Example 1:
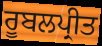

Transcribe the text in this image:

ਰੂਬਲਪ੍ਰੀਤ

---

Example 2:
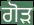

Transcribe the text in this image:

ਗੋੜ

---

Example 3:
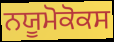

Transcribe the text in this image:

ਨਯੂਮੋਕੋਕਸ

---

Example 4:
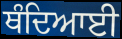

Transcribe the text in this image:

ਥੰਦਿਆਈ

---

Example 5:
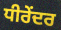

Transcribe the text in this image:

ਧੀਰੇਂਦਰ